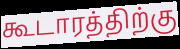
கூடாரத்திற்கு